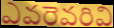
ఎవరెవరివి